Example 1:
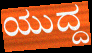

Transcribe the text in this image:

ಯುದ್ದ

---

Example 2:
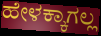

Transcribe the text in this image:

ಹೇಳಕ್ಕಾಗಲ್ಲ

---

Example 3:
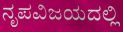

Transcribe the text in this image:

ನೃಪವಿಜಯದಲ್ಲಿ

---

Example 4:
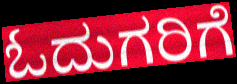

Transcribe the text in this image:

ಓದುಗರಿಗೆ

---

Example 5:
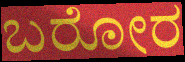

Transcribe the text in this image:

ಬರೋರ